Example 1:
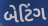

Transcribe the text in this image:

બેટિંગ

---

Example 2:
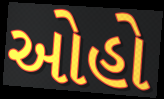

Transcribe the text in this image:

ઓહો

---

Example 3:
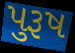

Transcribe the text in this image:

પુરૂષ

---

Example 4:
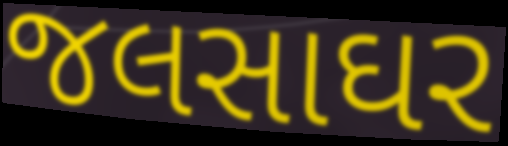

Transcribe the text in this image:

જલસાઘર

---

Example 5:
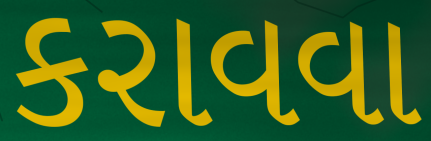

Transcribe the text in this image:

કરાવવા